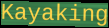
Kayaking